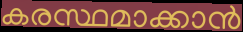
കരസ്ഥമാക്കാൻ